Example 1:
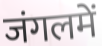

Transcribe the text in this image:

जंगलमें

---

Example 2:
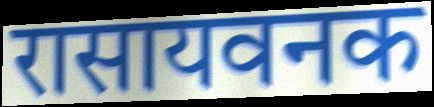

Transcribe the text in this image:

रासायवनक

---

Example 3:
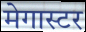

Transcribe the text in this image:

मेगास्टर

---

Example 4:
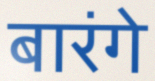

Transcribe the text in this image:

बारंगे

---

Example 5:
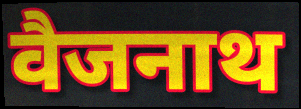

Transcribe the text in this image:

वैजनाथ